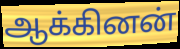
ஆக்கினன்